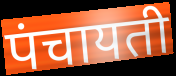
पंचायती